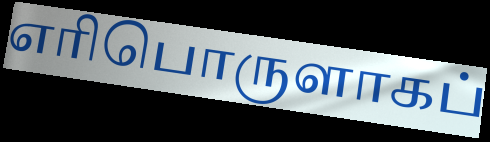
எரிபொருளாகப்